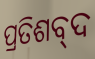
ପ୍ରତିଶବ୍‌ଦ